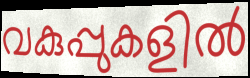
വകുപ്പുകളിൽ